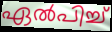
ഏൽപിച്ച്